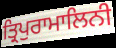
ਤ੍ਰਿਪੁਰਾਮਾਲਿਨੀ